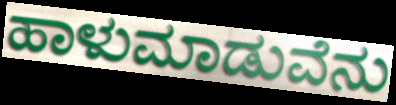
ಹಾಳುಮಾಡುವೆನು